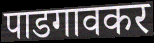
पाडगावकर